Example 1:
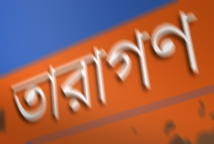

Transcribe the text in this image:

তারাগণ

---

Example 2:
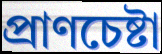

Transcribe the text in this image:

প্রাণচেষ্টা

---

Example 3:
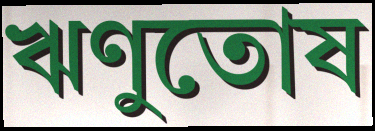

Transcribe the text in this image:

ঋণুতোষ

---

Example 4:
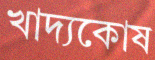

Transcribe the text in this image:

খাদ্যকোষ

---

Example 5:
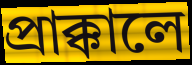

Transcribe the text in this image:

প্রাক্কালে